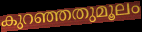
കുറഞ്ഞതുമൂലം